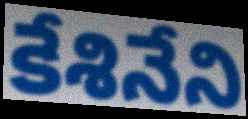
కేశినేని